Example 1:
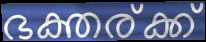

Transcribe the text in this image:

ഭക്തര്ക്ക്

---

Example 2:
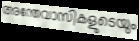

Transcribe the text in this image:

അന്തേവാസികളുടെയും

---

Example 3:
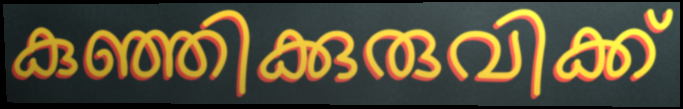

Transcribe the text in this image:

കുഞ്ഞിക്കുരുവിക്ക്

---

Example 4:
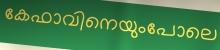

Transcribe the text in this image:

കേഫാവിനെയുംപോലെ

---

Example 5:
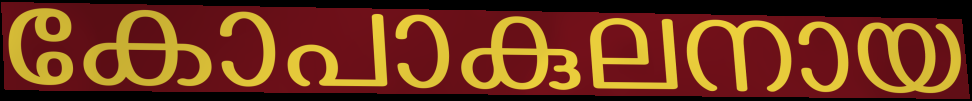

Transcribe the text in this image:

കോപാകുലനായ